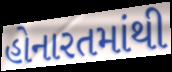
હોનારતમાંથી